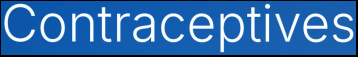
Contraceptives